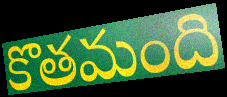
కొతమంది